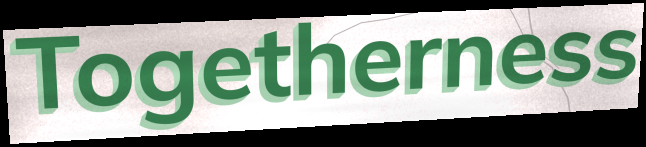
Togetherness